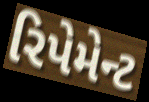
રિપેમેન્ટ